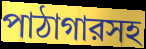
পাঠাগারসহ